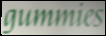
gummies